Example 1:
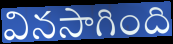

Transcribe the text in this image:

వినసాగింది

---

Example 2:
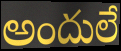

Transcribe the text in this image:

అందులే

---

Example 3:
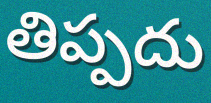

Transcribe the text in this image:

తిప్పదు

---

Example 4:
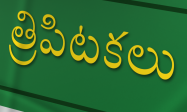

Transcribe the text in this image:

త్రిపిటకలు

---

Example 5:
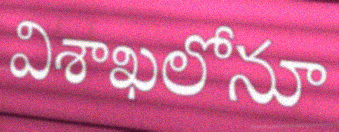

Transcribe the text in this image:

విశాఖలోనూ